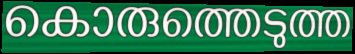
കൊരുത്തെടുത്ത